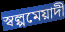
স্বল্পমেয়াদী